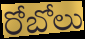
రోబోలు